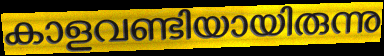
കാളവണ്ടിയായിരുന്നു